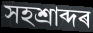
সহশ্ৰাব্দৰ